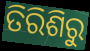
ତିରିଶିରୁ